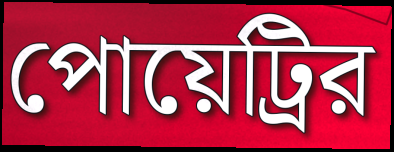
পোয়েট্রির